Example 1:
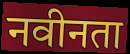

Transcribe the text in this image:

नवीनता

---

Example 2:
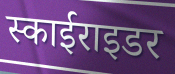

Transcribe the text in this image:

स्काईराइडर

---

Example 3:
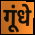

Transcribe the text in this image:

गूंधे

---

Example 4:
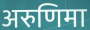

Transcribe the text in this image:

अरुणिमा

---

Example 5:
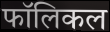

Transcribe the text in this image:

फॉलिकल